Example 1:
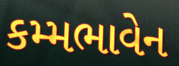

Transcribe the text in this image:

કમ્મભાવેન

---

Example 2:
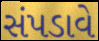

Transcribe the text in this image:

સંપડાવે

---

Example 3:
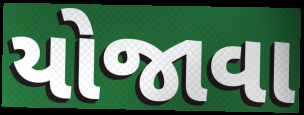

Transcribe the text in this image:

યોજાવા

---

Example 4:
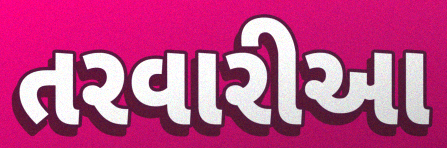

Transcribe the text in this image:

તરવારીઆ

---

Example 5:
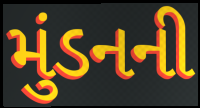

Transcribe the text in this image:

મુંડનની